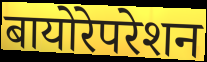
बायोरेपरेशन